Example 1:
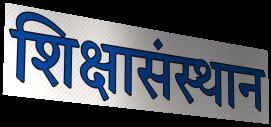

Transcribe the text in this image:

शिक्षासंस्थान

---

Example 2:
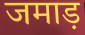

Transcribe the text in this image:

जमाड़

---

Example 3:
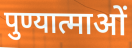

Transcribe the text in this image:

पुण्यात्माओं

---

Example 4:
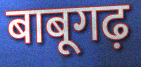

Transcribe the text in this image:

बाबूगढ़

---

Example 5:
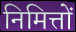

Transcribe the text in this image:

निमित्तों